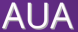
AUA